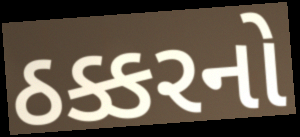
ઠક્કરનો